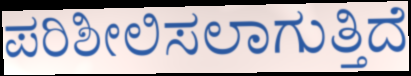
ಪರಿಶೀಲಿಸಲಾಗುತ್ತಿದೆ